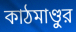
কাঠমাণ্ডুর